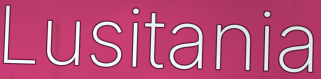
Lusitania